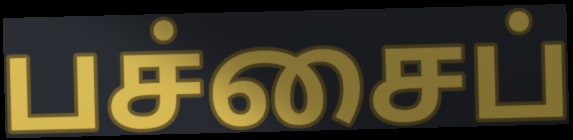
பச்சைப்